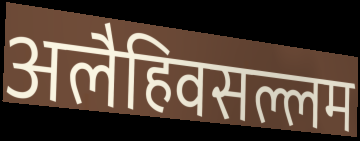
अलैहिवसल्लम